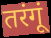
तरंगूं